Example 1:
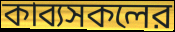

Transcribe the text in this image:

কাব্যসকলের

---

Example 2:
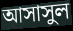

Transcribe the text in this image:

আসাসুল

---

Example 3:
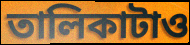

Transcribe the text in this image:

তালিকাটাও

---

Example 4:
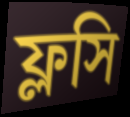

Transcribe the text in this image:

ফ্লসি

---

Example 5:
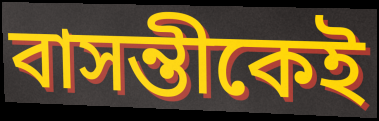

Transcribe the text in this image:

বাসন্তীকেই